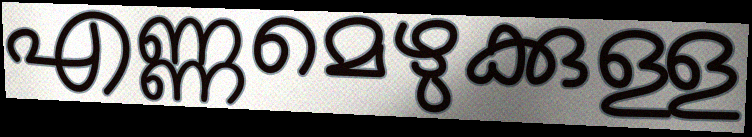
എണ്ണമെഴുക്കുള്ള